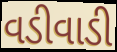
વડીવાડી